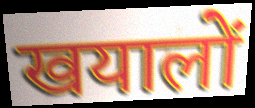
खयालों